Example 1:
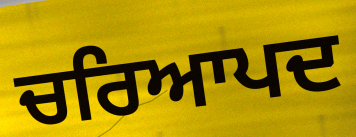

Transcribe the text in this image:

ਚਰਿਆਪਦ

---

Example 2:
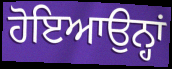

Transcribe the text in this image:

ਹੋਇਆਉਨ੍ਹਾਂ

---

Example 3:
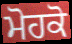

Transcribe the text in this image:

ਮੋਹਕੋ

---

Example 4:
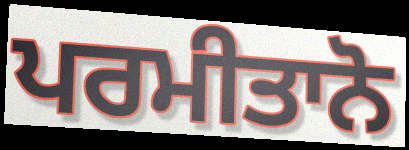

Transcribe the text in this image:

ਪਰਮੀਤਾਨੋ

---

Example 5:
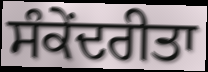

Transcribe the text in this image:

ਸੰਕੇਂਦਰੀਤਾ